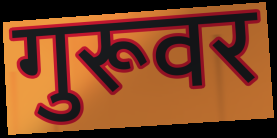
गुरूवर